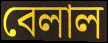
বেলাল